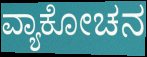
ವ್ಯಾಕೋಚನ